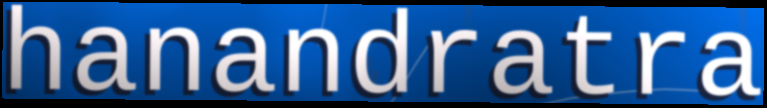
hanandratra